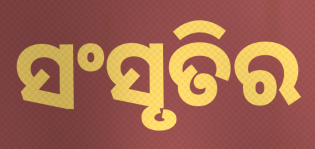
ସଂସୃତିର